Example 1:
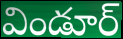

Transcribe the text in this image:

విండూర్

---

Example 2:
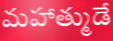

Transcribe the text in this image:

మహాత్ముడే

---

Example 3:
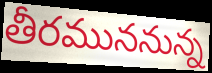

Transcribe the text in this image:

తీరముననున్న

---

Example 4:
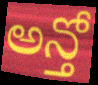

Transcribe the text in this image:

అన్తో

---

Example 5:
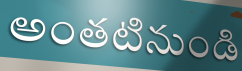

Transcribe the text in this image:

అంతటినుండి